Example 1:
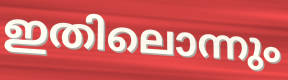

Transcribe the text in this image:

ഇതിലൊന്നും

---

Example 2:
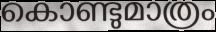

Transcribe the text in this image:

കൊണ്ടുമാത്രം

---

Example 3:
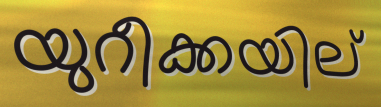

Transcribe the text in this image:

യുറീക്കയില്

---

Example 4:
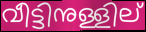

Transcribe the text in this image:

വീട്ടിനുള്ളില്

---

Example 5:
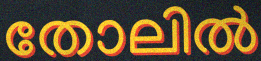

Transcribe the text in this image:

തോലിൽ